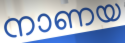
നാണയ